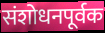
संशोधनपूर्वक